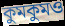
কুমকুমও